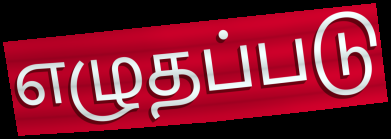
எழுதப்படு